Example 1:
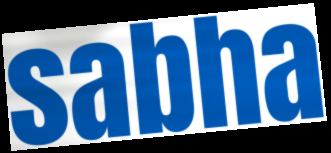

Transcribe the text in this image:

sabha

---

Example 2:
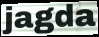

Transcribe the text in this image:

jagda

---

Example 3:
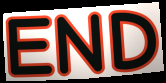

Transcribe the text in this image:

END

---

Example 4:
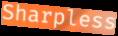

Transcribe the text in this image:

Sharpless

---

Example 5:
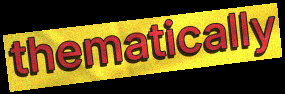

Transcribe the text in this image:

thematically